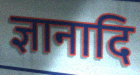
ज्ञानादि